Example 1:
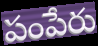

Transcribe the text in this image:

పంపేరు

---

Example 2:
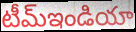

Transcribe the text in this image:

టీమ్ఇండియా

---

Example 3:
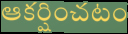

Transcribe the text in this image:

ఆకర్షించటం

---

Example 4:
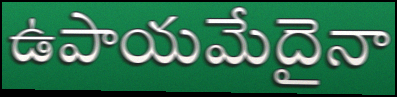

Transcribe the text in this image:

ఉపాయమేదైనా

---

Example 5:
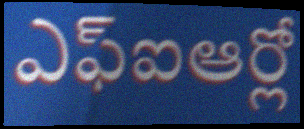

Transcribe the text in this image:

ఎఫ్ఐఆర్లో